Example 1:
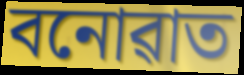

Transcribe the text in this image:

বনোৱাত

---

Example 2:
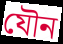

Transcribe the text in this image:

যৌন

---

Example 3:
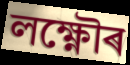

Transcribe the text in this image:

লক্ষ্ণৌৰ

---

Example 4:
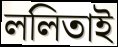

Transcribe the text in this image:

ললিতাই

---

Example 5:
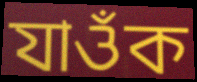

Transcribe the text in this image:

যাওঁক